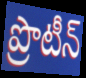
ప్రొటీన్